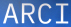
ARCI